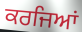
ਕਰਜਿਆਂ